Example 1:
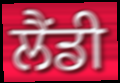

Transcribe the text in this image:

ਲੈਂਡੀ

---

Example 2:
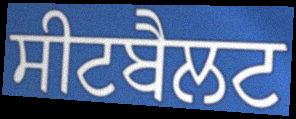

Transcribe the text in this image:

ਸੀਟਬੈਲਟ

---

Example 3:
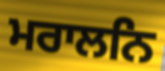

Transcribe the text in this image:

ਮਰਾਲਨਿ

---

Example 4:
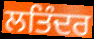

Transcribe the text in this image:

ਲਤਿੰਦਰ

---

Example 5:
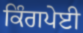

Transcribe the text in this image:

ਕਿੰਗਪੇਈ